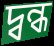
দ্বন্ধ